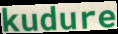
kudure